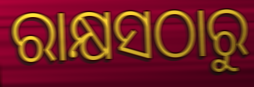
ରାକ୍ଷସଠାରୁ